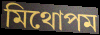
মিথোপম